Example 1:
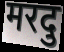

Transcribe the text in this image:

मरदु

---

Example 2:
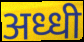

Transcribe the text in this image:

अध्धी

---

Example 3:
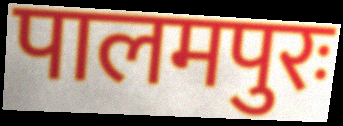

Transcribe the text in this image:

पालमपुरः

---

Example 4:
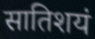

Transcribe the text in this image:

सातिशयं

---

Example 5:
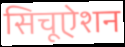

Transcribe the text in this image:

सिचूऐशन